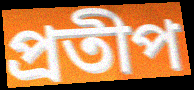
প্রতীপ